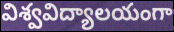
విశ్వవిద్యాలయంగా